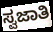
ಸ್ವಜಾತಿ